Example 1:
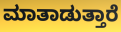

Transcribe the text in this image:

ಮಾತಾಡುತ್ತಾರೆ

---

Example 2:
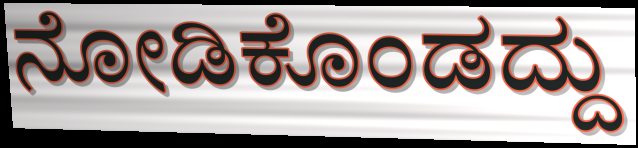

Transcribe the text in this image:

ನೋಡಿಕೊಂಡದ್ದು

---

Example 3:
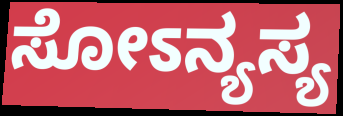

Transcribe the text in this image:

ಸೋಽನ್ಯಸ್ಯ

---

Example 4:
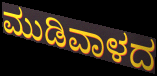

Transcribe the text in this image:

ಮುಡಿವಾಳದ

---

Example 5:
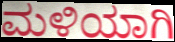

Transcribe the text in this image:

ಮಳಿಯಾಗಿ